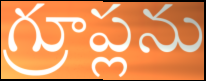
గ్రూప్లను